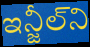
ఇన్జీల్‌ని